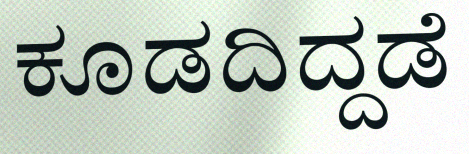
ಕೂಡದಿದ್ದಡೆ